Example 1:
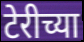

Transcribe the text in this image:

टेरीच्या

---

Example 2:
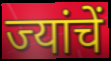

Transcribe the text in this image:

ज्यांचें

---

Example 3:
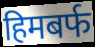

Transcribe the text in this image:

हिमबर्फ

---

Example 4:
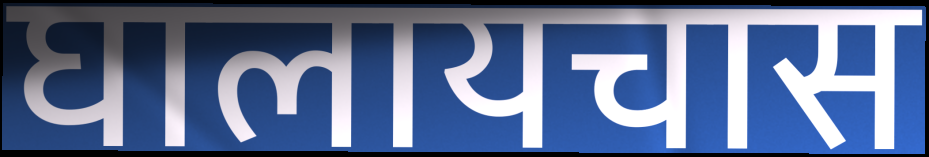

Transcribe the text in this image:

घालायचास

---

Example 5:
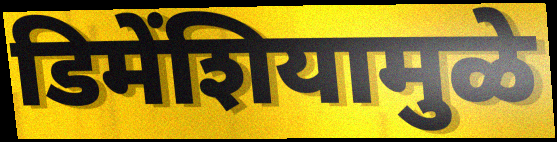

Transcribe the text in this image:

डिमेंशियामुळे